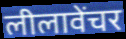
लीलावेंचर